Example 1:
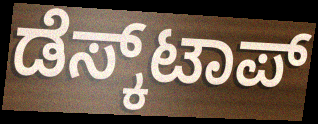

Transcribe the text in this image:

ಡೆಸ್ಕ್‌ಟಾಪ್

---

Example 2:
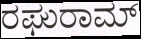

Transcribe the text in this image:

ರಘುರಾಮ್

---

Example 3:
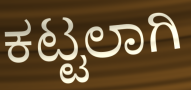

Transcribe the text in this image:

ಕಟ್ಟಲಾಗಿ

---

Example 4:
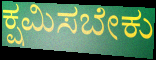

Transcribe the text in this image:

ಕ್ಷಮಿಸಬೇಕು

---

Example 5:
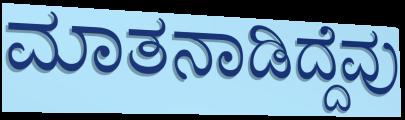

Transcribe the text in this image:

ಮಾತನಾಡಿದ್ದೆವು